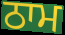
ਠਾਮ